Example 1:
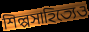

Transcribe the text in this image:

শিল্পসাহিত্যেও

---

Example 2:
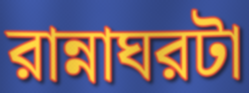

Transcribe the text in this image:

রান্নাঘরটা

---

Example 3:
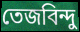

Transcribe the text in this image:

তেজবিন্দু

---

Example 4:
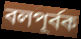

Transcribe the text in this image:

বলপূর্বক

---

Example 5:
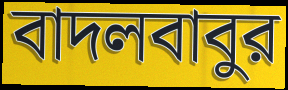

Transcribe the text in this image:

বাদলবাবুর